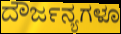
ದೌರ್ಜನ್ಯಗಳೂ